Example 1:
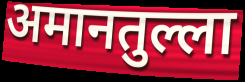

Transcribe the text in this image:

अमानतुल्ला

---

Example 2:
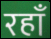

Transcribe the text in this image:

रहाँ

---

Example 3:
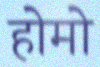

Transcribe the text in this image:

होमो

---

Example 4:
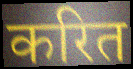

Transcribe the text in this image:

करित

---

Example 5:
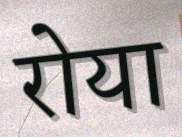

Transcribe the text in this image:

रोया